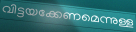
വിട്ടയക്കേണമെന്നുള്ള